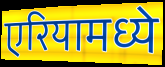
एरियामध्ये